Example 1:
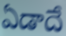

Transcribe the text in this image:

ఏడాదే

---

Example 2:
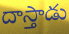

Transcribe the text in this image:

దాస్తాడు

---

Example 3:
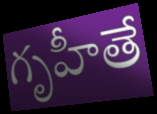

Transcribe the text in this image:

గృహీతే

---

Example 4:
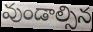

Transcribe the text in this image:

వుండాల్సిన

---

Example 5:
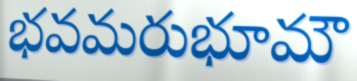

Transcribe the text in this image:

భవమరుభూమౌ